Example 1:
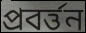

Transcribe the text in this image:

প্রবর্ত্তন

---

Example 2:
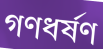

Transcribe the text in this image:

গণধর্ষণ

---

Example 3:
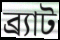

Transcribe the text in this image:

ব্র্যাট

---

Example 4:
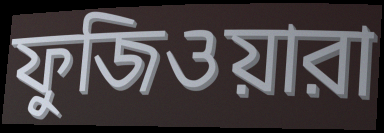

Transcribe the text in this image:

ফুজিওয়ারা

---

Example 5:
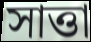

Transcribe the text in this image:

সাত্তা